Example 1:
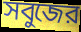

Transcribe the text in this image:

সবুজের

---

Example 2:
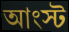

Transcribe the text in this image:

আংস্ট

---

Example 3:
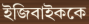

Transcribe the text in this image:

ইজিবাইককে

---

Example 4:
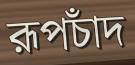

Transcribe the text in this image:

রূপচাঁদ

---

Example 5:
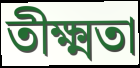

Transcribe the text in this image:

তীক্ষ্মতা